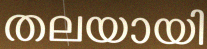
തലയായി